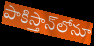
పాకిస్తాన్‌లోనూ